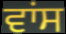
ਵਾਂਸ